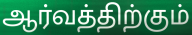
ஆர்வத்திற்கும்